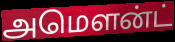
அமௌன்ட்